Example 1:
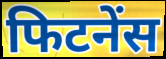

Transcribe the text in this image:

फिटनेंस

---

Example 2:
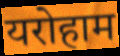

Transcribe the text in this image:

यरोहाम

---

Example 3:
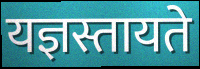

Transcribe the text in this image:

यज्ञस्तायते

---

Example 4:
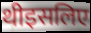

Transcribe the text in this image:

थीइसलिए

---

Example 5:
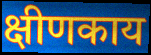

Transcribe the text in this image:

क्षीणकाय